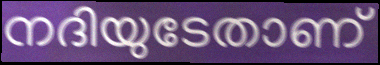
നദിയുടേതാണ്